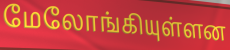
மேலோங்கியுள்ளன